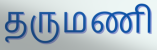
தருமணி